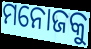
ମନୋଜକୁ